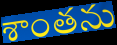
శాంతను